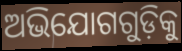
ଅଭିଯୋଗଗୁଡ଼ିକୁ